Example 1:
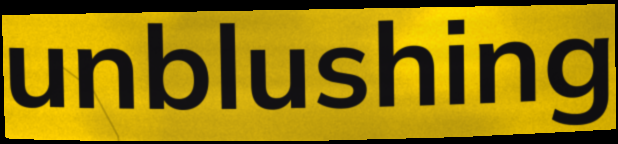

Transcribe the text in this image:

unblushing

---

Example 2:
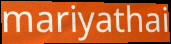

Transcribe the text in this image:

mariyathai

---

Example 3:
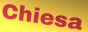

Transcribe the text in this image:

Chiesa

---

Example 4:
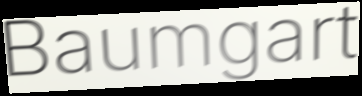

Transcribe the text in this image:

Baumgart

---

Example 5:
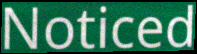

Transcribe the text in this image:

Noticed